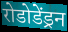
रोडोडेंड्रन